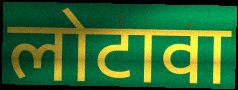
लोटावा